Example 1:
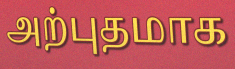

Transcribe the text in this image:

அற்புதமாக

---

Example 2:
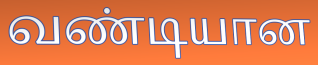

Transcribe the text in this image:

வண்டியான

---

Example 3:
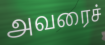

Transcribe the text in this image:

அவரைச்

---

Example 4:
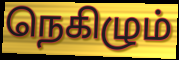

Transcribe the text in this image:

நெகிழும்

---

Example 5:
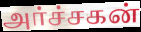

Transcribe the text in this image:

அர்ச்சகன்